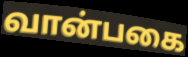
வான்பகை